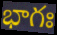
భాగః